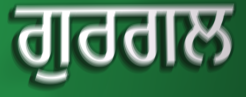
ਗੁਰਗਲ